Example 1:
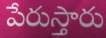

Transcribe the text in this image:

పేరుస్తారు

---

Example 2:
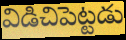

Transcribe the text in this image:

విడిచిపెట్టడు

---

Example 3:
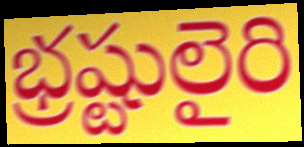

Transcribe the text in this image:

భ్రష్టులైరి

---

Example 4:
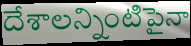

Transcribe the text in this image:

దేశాలన్నింటిపైనా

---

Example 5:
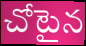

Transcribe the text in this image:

చోటైన